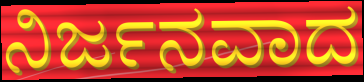
ನಿರ್ಜನವಾದ